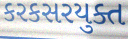
કરકસરયુક્ત